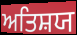
ਅਤਿਸ਼ਯ